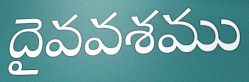
దైవవశము